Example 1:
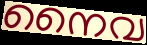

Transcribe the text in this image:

നൈവ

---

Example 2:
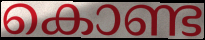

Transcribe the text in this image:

കൊണ്ട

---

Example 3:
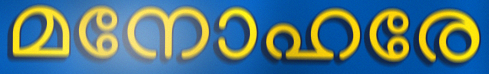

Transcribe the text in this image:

മനോഹരേ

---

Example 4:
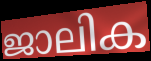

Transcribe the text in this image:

ജാലിക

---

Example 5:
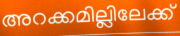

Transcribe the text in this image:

അറക്കമില്ലിലേക്ക്